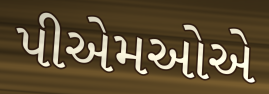
પીએમઓએ